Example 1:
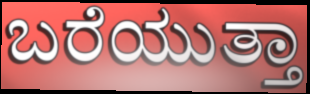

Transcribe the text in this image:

ಬರೆಯುತ್ತಾ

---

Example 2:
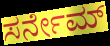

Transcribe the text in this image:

ಸರ್ನೇಮ್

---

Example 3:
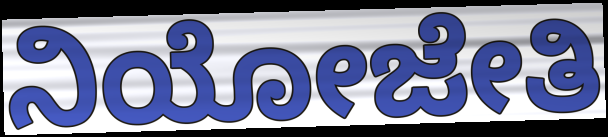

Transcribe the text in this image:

ನಿಯೋಜೇತಿ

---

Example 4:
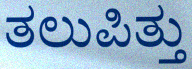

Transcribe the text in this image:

ತಲುಪಿತ್ತು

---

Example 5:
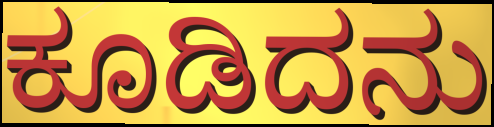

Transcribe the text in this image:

ಕೂಡಿದನು